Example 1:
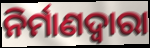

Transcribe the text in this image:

ନିର୍ମାଣଦ୍ୱାରା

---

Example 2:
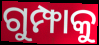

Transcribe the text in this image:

ଗୁମ୍ଫାକୁ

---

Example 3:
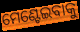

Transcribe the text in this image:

ମେଣ୍ଟେଇବାକୁ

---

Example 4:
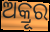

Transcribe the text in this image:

ଅକ୍ରୂର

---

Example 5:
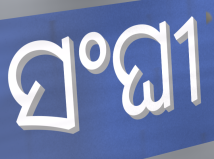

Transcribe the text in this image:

ସଂଘୀ